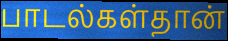
பாடல்கள்தான்